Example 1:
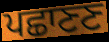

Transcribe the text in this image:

ਪਛਾਣਣ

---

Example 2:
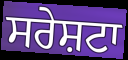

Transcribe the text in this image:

ਸਰੇਸ਼ਟਾ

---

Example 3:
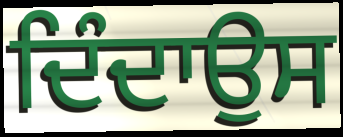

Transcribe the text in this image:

ਦਿੰਦਾਉਸ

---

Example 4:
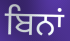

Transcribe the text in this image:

ਬਿਨਾਂ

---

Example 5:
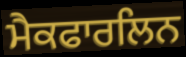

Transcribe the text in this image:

ਮੈਕਫਾਰਲਿਨ